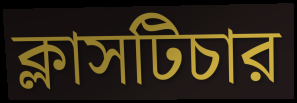
ক্লাসটিচার